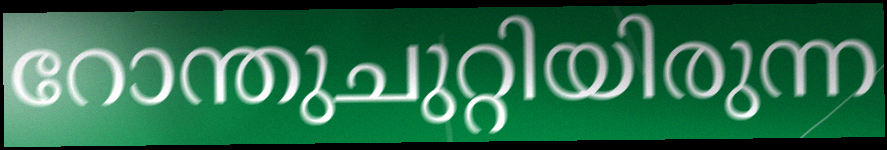
റോന്തുചുറ്റിയിരുന്ന